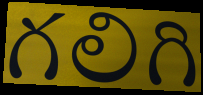
గలిగి